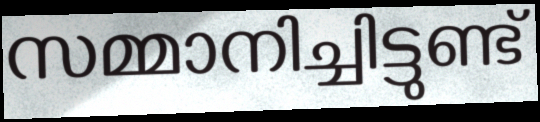
സമ്മാനിച്ചിട്ടുണ്ട്